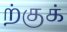
ற்குக்